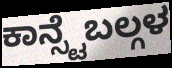
ಕಾನ್ಸ್ಟೆಬಲ್ಗಳ